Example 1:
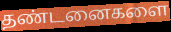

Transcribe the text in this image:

தண்டனைகளை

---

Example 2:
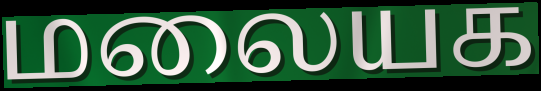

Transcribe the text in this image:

மலையக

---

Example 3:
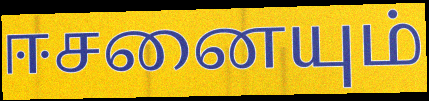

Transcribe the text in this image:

ஈசனையும்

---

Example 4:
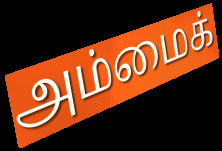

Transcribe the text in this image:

அம்மைக்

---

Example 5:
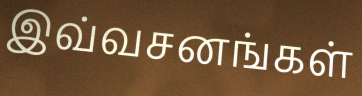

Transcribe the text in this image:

இவ்வசனங்கள்